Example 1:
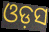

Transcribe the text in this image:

ଓଡ଼ସ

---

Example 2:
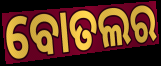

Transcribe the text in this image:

ବୋତଲର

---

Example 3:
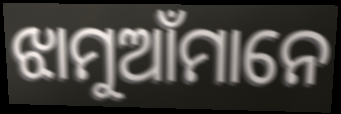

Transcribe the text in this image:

ଝାମୁଆଁମାନେ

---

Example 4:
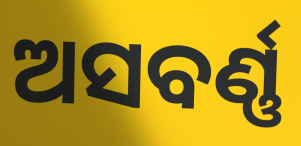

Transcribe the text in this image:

ଅସବର୍ଣ୍ଣ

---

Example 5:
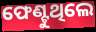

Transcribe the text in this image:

ଫେଣ୍ଟୁଥିଲେ